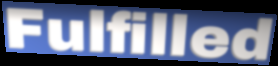
Fulfilled